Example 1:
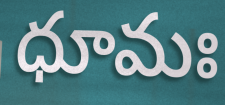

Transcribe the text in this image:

ధూమః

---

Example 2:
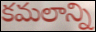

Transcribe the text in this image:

కమలాన్ని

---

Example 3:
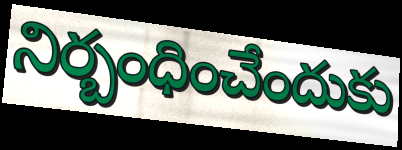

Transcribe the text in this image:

నిర్బంధించేందుకు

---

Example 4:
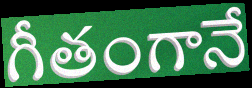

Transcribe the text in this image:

గీతంగానే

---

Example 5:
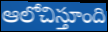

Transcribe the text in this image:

ఆలోచిస్తూంది